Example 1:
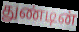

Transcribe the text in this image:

துண்டின்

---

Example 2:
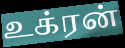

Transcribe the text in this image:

உக்ரன்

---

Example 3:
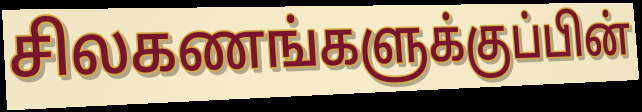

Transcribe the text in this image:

சிலகணங்களுக்குப்பின்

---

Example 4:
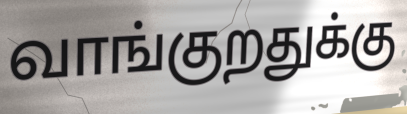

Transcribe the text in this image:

வாங்குறதுக்கு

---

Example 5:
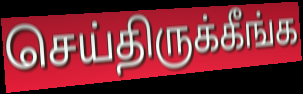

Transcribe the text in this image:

செய்திருக்கீங்க